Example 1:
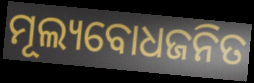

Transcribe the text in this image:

ମୂଲ୍ୟବୋଧଜନିତ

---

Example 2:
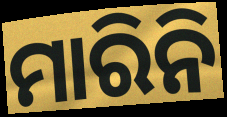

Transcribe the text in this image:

ମାରିନି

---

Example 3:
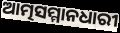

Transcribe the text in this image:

ଆତ୍ମସମ୍ମାନଧାରୀ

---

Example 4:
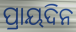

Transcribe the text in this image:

ପ୍ରାୟଦିନ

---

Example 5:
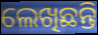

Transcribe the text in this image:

ଲେଖିଛନ୍ତି